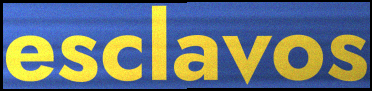
esclavos